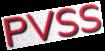
PVSS